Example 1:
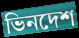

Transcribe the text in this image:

ভিনদেশ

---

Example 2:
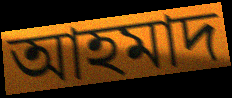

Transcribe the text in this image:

আহমাদ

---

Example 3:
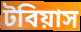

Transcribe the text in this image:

টবিয়াস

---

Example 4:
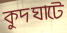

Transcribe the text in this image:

কুদঘাটে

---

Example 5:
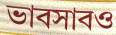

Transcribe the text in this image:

ভাবসাবও